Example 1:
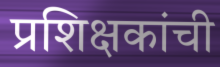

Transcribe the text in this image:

प्रशिक्षकांची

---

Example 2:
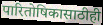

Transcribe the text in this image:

पारितोषिकासाठीही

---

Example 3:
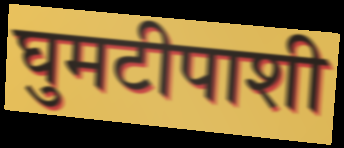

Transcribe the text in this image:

घुमटीपाशी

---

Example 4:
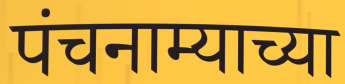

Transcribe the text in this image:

पंचनाम्याच्या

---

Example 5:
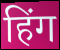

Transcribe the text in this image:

हिंग